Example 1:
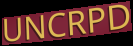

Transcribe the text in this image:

UNCRPD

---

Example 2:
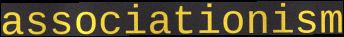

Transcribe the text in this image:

associationism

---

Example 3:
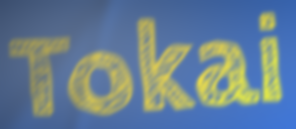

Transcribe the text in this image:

Tokai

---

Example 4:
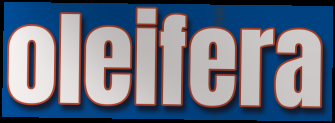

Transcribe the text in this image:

oleifera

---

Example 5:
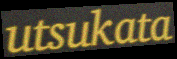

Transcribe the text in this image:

utsukata